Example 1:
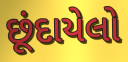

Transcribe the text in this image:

છૂંદાયેલો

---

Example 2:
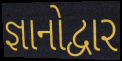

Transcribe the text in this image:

જ્ઞાનોદ્વાર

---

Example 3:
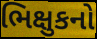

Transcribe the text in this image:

ભિક્ષુકનો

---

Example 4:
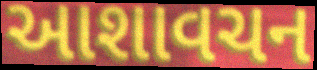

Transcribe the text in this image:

આશાવચન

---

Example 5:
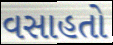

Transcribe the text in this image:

વસાહતો